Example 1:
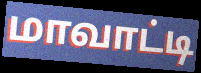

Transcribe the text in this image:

மாவாட்டி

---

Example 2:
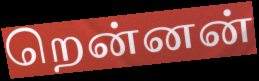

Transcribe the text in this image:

றென்னன்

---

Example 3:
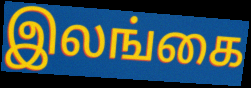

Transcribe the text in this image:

இலங்கை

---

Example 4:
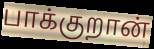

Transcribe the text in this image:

பாக்குறான்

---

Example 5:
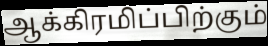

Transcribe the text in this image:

ஆக்கிரமிப்பிற்கும்